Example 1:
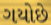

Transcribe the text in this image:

ગયોછે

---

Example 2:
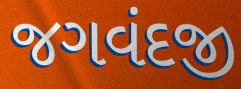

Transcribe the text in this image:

જગવંદજી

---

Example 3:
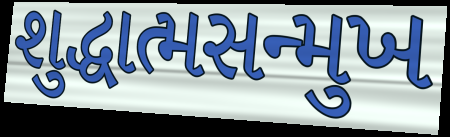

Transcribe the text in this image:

શુદ્ધાત્મસન્મુખ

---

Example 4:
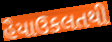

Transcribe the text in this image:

હૈયાઉકલતથી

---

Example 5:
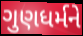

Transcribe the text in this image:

ગુણધર્મને